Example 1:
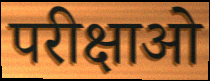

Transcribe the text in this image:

परीक्षाओ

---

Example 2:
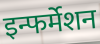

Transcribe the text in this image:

इन्फर्मेशन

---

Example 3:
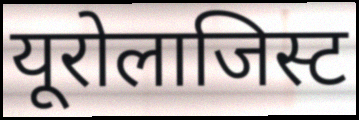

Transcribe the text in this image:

यूरोलाजिस्ट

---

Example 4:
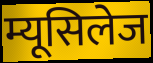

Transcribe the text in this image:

म्यूसिलेज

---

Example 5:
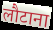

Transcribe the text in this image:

लौटाना